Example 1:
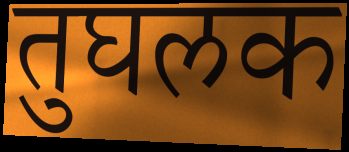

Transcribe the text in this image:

तुघलक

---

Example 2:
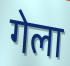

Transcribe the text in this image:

गेला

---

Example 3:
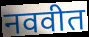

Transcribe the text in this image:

नववीत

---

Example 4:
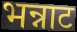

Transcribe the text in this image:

भन्नाट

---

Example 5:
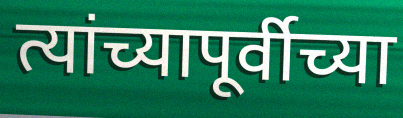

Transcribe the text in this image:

त्यांच्यापूर्वीच्या